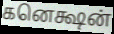
கனெக்ஷன்